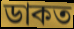
ডাকত